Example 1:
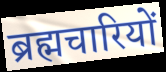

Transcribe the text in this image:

ब्रह्मचारियों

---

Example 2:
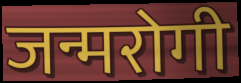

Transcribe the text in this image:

जन्मरोगी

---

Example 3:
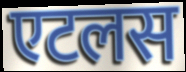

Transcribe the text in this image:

एटलस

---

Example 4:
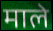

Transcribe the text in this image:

माले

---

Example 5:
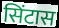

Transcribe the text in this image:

सिंटास